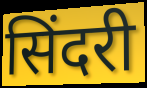
सिंदरी